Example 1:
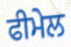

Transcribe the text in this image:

ਫੀਮੇਲ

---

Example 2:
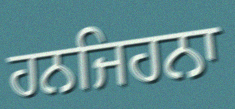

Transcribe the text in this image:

ਹਨਜਿਹਨਾ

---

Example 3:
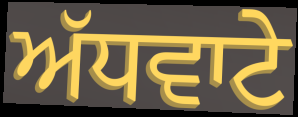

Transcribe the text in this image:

ਅੱਧਵਾਟੇ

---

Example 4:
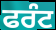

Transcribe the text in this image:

ਫਰੰਟ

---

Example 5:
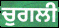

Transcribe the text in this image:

ਚੁਗਲੀ